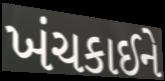
ખંચકાઈને